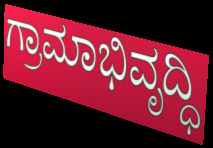
ಗ್ರಾಮಾಭಿವೃದ್ಧಿ